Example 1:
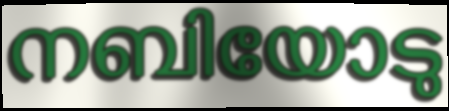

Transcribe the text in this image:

നബിയോടു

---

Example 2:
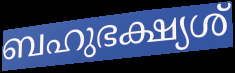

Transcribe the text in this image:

ബഹുഭക്ഷ്യശ്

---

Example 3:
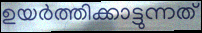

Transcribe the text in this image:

ഉയർത്തിക്കാട്ടുന്നത്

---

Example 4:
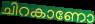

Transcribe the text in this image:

ചിറകാണോ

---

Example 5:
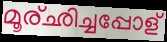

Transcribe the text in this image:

മൂര്ഛിച്ചപ്പോള്